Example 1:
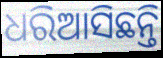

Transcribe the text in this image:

ଧରିଆସିଛନ୍ତି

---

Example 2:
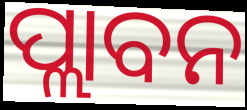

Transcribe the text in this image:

ପ୍ଲାବନ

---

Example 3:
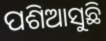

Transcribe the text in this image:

ପଶିଆସୁଛି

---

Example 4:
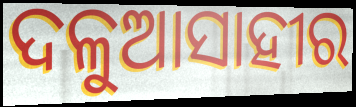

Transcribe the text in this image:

ଦଳୁଆସାହୀର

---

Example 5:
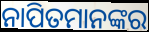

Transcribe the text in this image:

ନାପିତମାନଙ୍କର